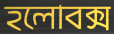
হলোবক্স